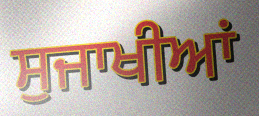
ਸੁਜਾਖੀਆਂ